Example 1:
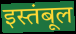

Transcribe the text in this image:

इस्तंबूल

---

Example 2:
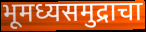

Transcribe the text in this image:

भूमध्यसमुद्राचा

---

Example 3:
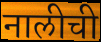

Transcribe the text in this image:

नालीची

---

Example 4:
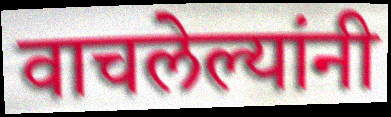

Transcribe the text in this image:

वाचलेल्यांनी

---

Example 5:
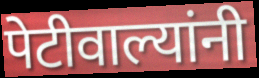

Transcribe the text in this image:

पेटीवाल्यांनी